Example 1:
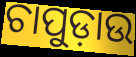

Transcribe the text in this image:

ଚାପୁଡ଼ାଉ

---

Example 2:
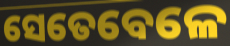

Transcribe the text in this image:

ସେତେବେଳେ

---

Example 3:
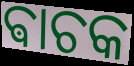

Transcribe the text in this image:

ଵାଚକ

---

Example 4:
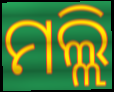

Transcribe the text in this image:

ମଲ୍ଲି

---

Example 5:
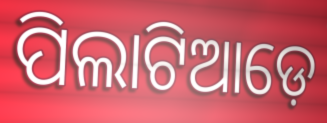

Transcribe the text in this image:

ପିଲାଟିଆଡ଼େ